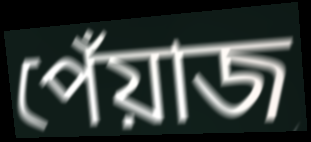
পেঁয়াজ